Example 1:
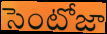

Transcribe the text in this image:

సెంటోజా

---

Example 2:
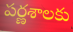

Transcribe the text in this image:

పర్ణశాలకు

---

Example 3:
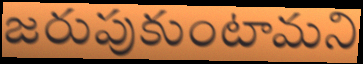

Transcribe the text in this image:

జరుపుకుంటామని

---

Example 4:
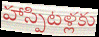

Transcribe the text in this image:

హాస్పిటళ్లకు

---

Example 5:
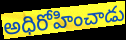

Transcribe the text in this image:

అధిరోహించాడు